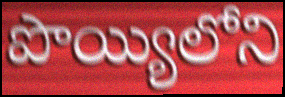
పొయ్యిలోని